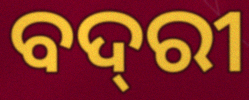
ବଦ୍‌ରୀ